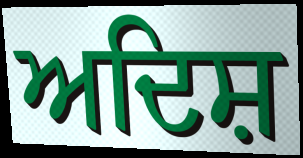
ਅਦਿਸ਼